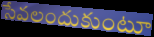
సేవలందుకుంటూ